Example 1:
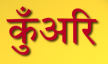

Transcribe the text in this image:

कुँअरि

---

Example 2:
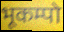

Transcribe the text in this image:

भूकम्पो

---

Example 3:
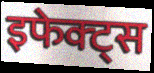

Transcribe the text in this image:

इफेक्‍ट्स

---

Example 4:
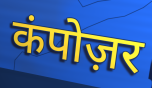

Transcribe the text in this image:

कंपोज़र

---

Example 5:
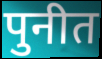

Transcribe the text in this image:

पुनीत